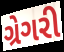
ગ્રેગરી